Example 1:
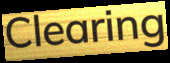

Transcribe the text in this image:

Clearing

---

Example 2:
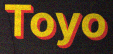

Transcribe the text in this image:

Toyo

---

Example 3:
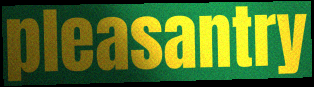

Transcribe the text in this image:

pleasantry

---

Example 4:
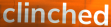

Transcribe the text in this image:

clinched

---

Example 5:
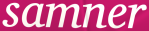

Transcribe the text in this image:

samner